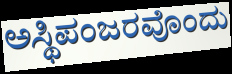
ಅಸ್ಥಿಪಂಜರವೊಂದು